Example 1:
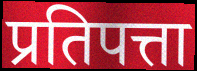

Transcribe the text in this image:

प्रतिपत्ता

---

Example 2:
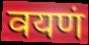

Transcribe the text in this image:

वयणं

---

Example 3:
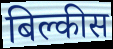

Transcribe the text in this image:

बिल्कीस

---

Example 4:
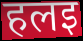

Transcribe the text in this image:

हलइ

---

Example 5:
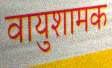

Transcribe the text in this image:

वायुशामक